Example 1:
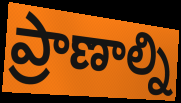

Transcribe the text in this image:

ప్రాణాల్ని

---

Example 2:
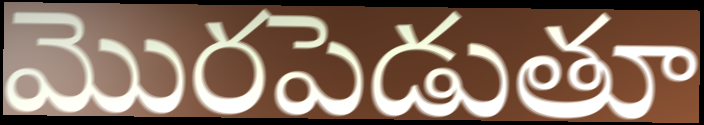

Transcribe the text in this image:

మొరపెడుతూ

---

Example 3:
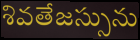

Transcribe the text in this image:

శివతేజస్సును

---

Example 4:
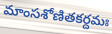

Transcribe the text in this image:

మాంసశోణితకర్దమః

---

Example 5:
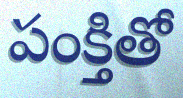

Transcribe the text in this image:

పంక్తితో